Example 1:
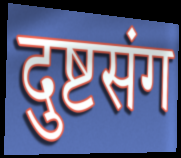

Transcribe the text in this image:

दुष्टसंग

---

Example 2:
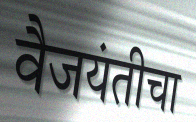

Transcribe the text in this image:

वैजयंतीचा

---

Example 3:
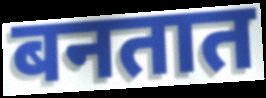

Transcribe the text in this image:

बनतात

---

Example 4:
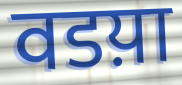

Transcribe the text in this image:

वडय़ा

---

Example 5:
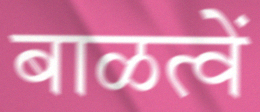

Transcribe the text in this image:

बाळत्वें